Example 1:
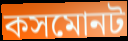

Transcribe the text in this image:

কসমোনট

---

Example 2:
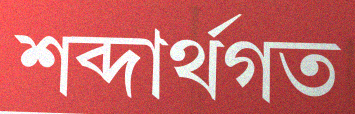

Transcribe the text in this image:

শব্দার্থগত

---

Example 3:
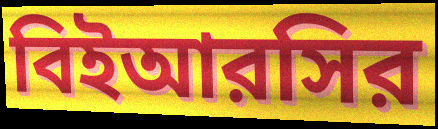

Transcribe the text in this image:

বিইআরসির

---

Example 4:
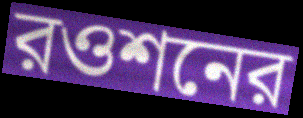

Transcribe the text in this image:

রওশনের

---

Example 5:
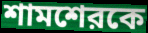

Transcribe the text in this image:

শামশেরকে